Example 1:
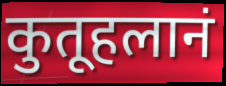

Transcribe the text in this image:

कुतूहलानं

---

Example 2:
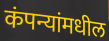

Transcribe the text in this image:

कंपन्यांमधील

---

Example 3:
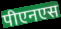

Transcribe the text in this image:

पीएनएस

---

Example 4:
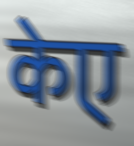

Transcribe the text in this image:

केए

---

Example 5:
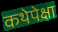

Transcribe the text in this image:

कथेपेक्षा